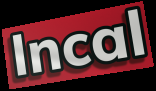
Incal